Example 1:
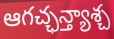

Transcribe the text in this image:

ఆగచ్ఛన్త్యాశ్చ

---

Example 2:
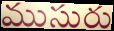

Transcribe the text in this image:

ముసురు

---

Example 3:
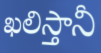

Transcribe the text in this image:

ఖలిస్తానీ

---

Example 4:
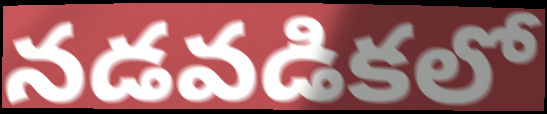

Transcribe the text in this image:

నడవడికలో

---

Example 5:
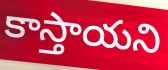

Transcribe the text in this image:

కాస్తాయని